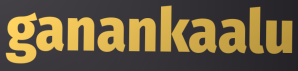
ganankaalu